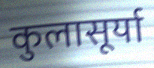
कुलासूर्या